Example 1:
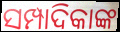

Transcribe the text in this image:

ସମ୍ପାଦିକାଙ୍କ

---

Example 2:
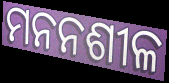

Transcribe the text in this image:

ମନନଶୀଳ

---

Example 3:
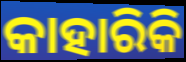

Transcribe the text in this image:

କାହାରିକି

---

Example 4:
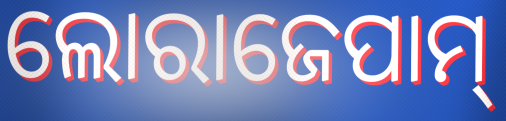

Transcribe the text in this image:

ଲୋରାଜେପାମ୍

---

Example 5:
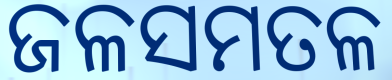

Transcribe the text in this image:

ଜଳସମତଳ